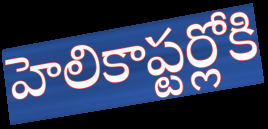
హెలికాప్టర్లోకి